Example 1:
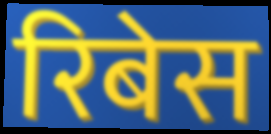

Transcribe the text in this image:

रिबेस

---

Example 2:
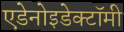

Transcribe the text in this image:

एडेनोइडेक्टॉमी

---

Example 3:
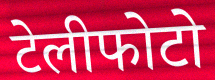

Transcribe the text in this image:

टेलीफोटो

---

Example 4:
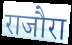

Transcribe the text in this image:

राजौरा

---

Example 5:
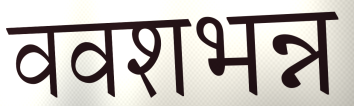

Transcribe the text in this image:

ववशभन्न